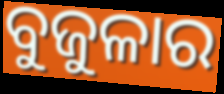
ବୁଜୁଳାର